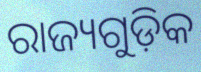
ରାଜ୍ୟଗୁଡ଼ିକ